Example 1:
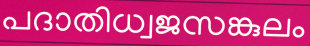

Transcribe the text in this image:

പദാതിധ്വജസങ്കുലം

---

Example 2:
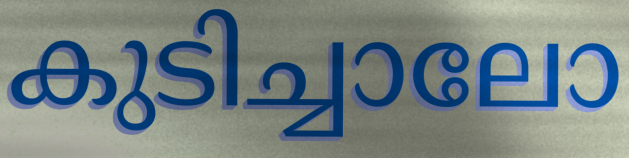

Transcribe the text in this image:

കുടിച്ചാലോ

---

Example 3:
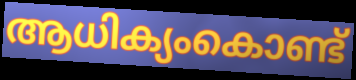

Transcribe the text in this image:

ആധിക്യംകൊണ്ട്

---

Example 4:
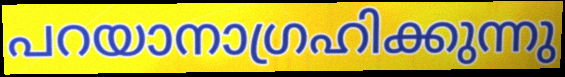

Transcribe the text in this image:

പറയാനാഗ്രഹിക്കുന്നു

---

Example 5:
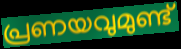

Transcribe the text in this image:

പ്രണയവുമുണ്ട്